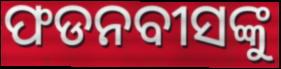
ଫଡନବୀସଙ୍କୁ